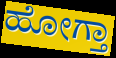
ಹೋಗ್ತಾ